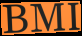
BMI